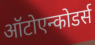
ऑटोएन्कोडर्स